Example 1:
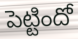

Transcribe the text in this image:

పెట్టిందో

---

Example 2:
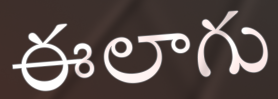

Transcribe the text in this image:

ఈలాగు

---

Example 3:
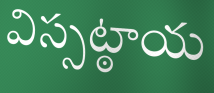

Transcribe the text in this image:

విస్సట్ఠాయ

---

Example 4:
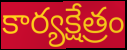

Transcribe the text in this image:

కార్యక్షేత్రం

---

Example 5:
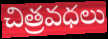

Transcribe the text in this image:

చిత్రవధలు